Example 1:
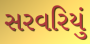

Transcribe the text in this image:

સરવરિયું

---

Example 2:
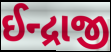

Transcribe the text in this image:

ઈન્દ્રાજી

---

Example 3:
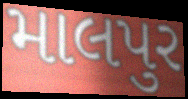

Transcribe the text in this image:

માલપુર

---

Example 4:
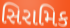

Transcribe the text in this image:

સિરામિક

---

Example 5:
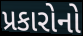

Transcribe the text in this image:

પ્રકારોનો